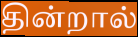
தின்றால்